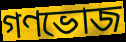
গণভোজ